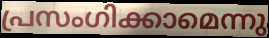
പ്രസംഗിക്കാമെന്നു